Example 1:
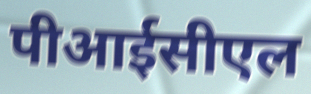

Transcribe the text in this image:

पीआईसीएल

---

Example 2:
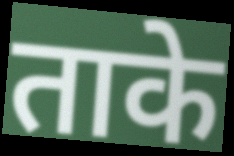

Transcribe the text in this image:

ताके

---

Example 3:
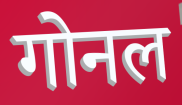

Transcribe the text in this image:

गोनल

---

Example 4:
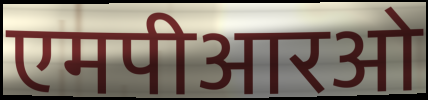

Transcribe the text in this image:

एमपीआरओ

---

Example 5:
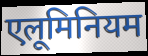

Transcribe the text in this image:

एलूमिनियम